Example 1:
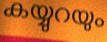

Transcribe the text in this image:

കയ്യുറയും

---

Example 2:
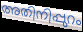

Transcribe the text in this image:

അതിനിപ്പുറം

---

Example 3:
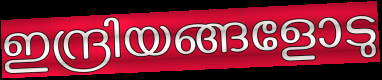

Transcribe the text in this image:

ഇന്ദ്രിയങ്ങളോടു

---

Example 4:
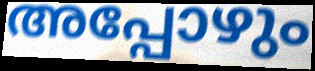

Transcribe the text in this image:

അപ്പോഴും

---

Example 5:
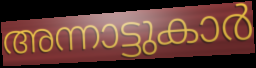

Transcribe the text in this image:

അന്നാട്ടുകാർ